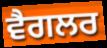
ਵੈਗਲਰ